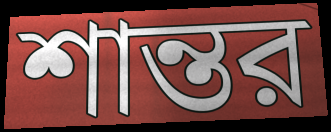
শান্তর